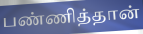
பண்ணித்தான்